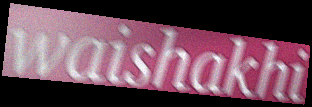
waishakhi